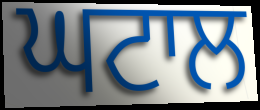
ਘਟਾਲ